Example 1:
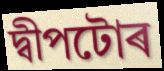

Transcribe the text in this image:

দ্বীপটোৰ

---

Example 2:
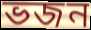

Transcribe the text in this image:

ভজন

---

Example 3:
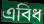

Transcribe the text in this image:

এবিধ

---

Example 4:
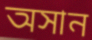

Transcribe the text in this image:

অসান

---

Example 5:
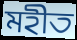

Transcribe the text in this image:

মহীত